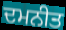
ਦਮਨੀਤ